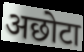
अछोटा